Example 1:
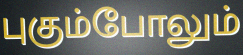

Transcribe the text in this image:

புகும்போலும்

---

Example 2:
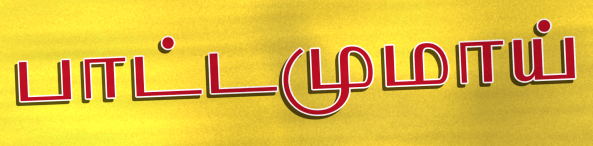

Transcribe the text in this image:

பாட்டமுமாய்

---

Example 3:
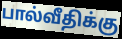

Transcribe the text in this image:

பால்வீதிக்கு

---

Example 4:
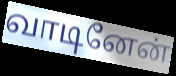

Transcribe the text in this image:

வாடினேன்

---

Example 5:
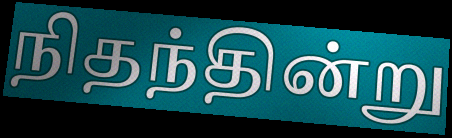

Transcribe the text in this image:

நிதந்தின்று